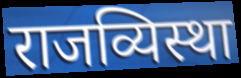
राजव्यिस्था